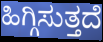
ಹಿಗ್ಗಿಸುತ್ತದೆ